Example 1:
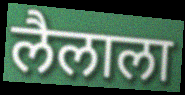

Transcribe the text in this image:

लैलाला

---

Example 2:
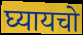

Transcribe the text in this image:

घ्यायचो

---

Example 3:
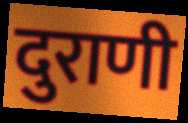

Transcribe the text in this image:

दुराणी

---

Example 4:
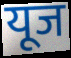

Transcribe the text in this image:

यूज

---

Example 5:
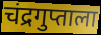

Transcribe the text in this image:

चंद्रगुप्ताला